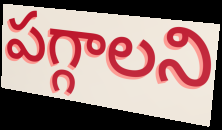
పగ్గాలని